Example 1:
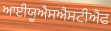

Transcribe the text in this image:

ਆਈਯੂਐਸਐਸਟੀਐਫ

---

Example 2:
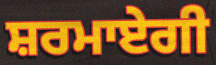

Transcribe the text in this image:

ਸ਼ਰਮਾਏਗੀ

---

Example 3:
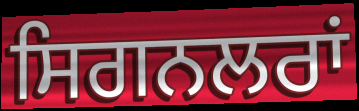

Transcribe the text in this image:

ਸਿਗਨਲਰਾਂ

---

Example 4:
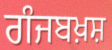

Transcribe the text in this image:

ਗੰਜਬਖ਼ਸ਼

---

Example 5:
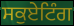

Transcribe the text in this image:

ਸਕੁਏਟਿੰਗ